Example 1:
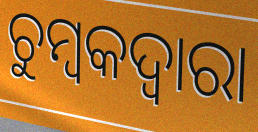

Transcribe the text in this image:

ଚୁମ୍ବକଦ୍ବାରା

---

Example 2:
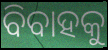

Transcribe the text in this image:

ବିବାହକୁ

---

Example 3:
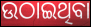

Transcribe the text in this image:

ଉଠାଇଥିବା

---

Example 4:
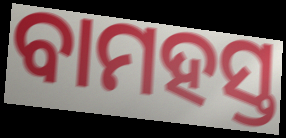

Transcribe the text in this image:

ବାମହସ୍ତ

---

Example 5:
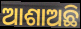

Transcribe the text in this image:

ଆଶାଅଛି